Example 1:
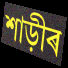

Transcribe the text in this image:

শাড়ীৰ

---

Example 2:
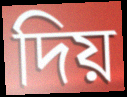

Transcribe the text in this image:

দিয়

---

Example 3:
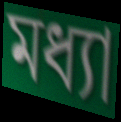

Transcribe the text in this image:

মধ্যা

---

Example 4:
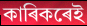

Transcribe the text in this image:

কাৰিকৰেই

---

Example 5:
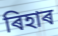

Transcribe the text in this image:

ৰিহাৰ